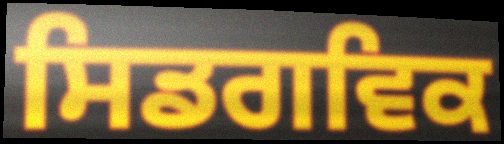
ਸਿਡਗਵਿਕ